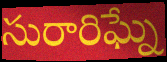
సురారిఘ్నే